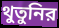
থুতুনির